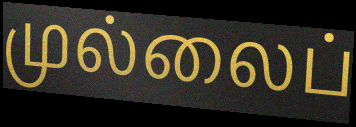
முல்லைப்